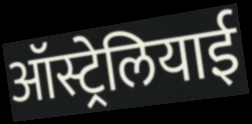
ऑस्ट्रेलियाई